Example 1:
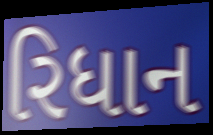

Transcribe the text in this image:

રિધાન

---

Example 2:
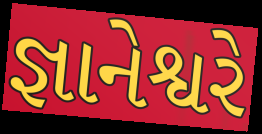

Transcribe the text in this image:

જ્ઞાનેશ્વરે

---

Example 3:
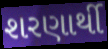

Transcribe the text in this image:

શરણાર્થી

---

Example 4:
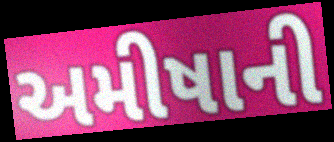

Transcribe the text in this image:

અમીષાની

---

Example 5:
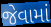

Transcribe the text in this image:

જેવામાં